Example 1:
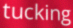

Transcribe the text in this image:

tucking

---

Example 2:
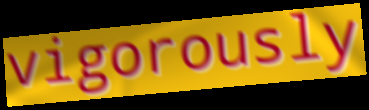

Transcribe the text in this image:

vigorously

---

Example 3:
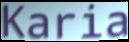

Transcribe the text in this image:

Karia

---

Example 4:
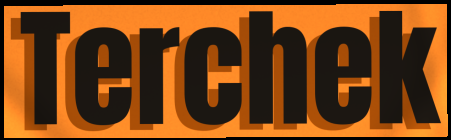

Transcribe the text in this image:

Terchek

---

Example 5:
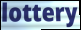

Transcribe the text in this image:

lottery